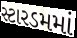
સ્ટારડમમાં